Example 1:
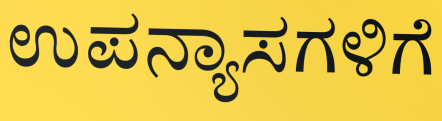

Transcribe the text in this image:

ಉಪನ್ಯಾಸಗಳಿಗೆ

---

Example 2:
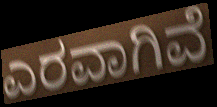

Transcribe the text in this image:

ಎರವಾಗಿವೆ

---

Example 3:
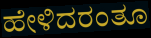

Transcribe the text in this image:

ಹೇಳಿದರಂತೂ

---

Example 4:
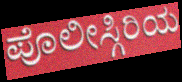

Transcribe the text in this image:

ಪೊಲೀಸ್ಗಿರಿಯ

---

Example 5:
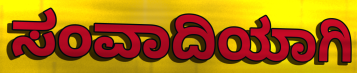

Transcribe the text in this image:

ಸಂವಾದಿಯಾಗಿ